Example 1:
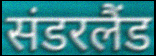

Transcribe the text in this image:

संडरलैंड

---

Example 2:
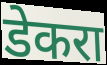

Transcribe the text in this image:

डेकरा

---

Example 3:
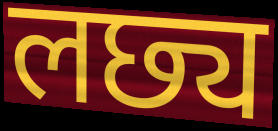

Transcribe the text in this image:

लछ्य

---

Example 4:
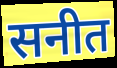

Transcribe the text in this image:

सनीत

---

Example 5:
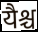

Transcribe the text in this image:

यैश्च